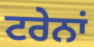
ਟਰੇਨਾਂ